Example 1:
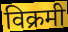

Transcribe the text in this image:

विक्रमी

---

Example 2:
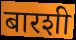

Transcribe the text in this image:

बारशी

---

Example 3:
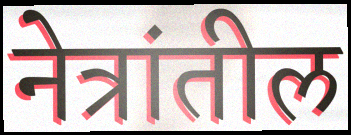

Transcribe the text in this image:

नेत्रांतील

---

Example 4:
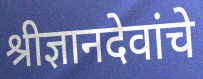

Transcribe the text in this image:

श्रीज्ञानदेवांचे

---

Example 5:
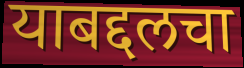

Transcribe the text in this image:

याबद्दलचा